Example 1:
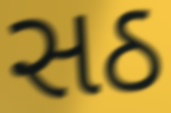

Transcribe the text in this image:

સઠ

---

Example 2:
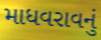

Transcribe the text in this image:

માધવરાવનું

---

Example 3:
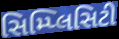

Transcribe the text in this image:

સિમ્પ્લિસિટી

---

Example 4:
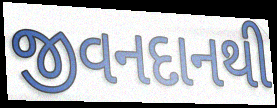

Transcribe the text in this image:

જીવનદાનથી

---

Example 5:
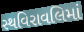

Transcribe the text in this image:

સ્થવિરાવલિમાં